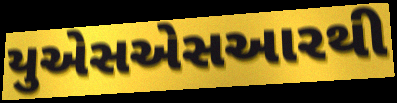
યુએસએસઆરથી